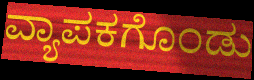
ವ್ಯಾಪಕಗೊಂಡು